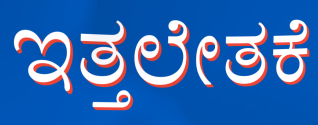
ಇತ್ತಲೇತಕೆ